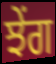
ਝੇਂਗ